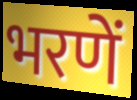
भरणें